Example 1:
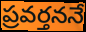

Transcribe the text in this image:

ప్రవర్తననే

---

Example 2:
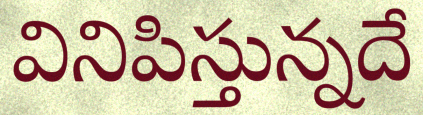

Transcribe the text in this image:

వినిపిస్తున్నదే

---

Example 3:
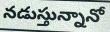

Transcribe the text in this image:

నడుస్తున్నానో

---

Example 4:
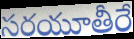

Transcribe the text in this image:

సరయూతీరే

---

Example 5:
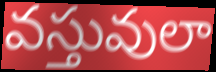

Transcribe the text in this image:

వస్తువులా